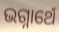
ଭଗ୍ନାର୍ଥେ